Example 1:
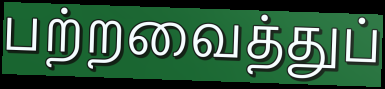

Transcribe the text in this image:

பற்றவைத்துப்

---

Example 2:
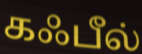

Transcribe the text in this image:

கஃபீல்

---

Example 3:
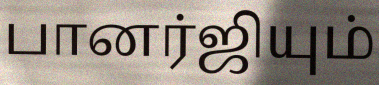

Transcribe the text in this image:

பானர்ஜியும்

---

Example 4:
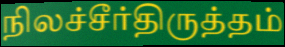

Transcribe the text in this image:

நிலச்சீர்திருத்தம்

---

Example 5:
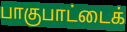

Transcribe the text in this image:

பாகுபாட்டைக்